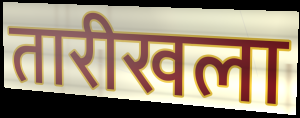
तारीखला